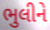
ભુલીને